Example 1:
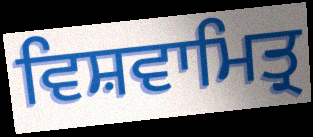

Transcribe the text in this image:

ਵਿਸ਼ਵਾਮਿਤ੍ਰ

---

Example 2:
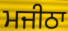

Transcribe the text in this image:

ਮਜੀਠਾ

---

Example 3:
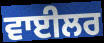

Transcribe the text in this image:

ਵਾਈਲਰ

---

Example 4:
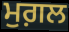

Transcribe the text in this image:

ਮੁਗ਼ਲ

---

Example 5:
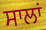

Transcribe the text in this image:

ਸਾਲਾਂ